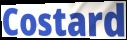
Costard